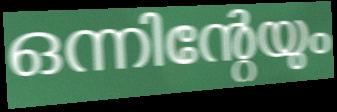
ഒന്നിന്റേയും